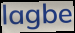
lagbe